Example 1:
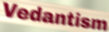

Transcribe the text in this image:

Vedantism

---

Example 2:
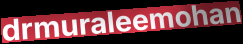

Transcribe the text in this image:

drmuraleemohan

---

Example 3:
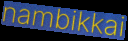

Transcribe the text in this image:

nambikkai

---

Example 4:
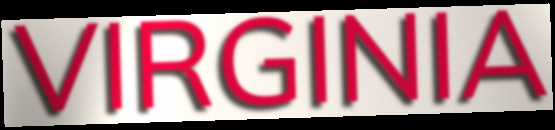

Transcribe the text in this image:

VIRGINIA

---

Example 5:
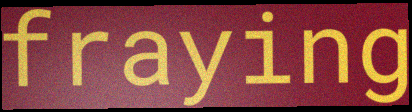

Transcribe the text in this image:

fraying